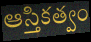
ఆస్తికత్వం